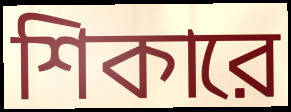
শিকারে